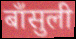
बाँसुली